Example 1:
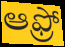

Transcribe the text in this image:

ఆఫ్రో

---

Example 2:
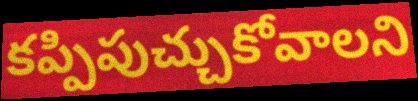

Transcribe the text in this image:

కప్పిపుచ్చుకోవాలని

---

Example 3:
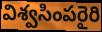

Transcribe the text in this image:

విశ్వసింపరైరి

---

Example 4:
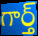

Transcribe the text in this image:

గార్త్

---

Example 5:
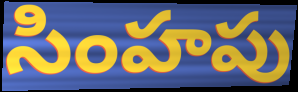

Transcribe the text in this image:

సింహపు